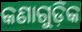
କଣାଗୁଡ଼ିକ